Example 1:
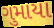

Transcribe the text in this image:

ગુમાયા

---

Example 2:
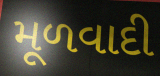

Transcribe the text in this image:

મૂળવાદી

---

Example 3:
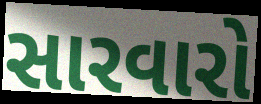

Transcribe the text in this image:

સારવારો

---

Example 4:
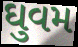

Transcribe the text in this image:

ઘુવમ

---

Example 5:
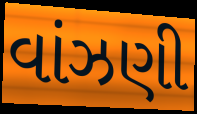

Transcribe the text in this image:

વાંઝણી